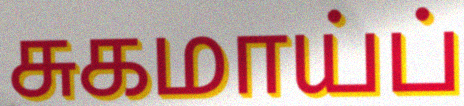
சுகமாய்ப்